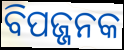
ବିପଜ୍ଜନକ